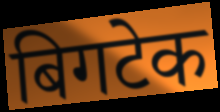
बिगटेक